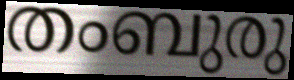
തംബുരു